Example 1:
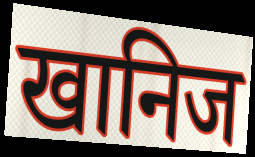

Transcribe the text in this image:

खानिज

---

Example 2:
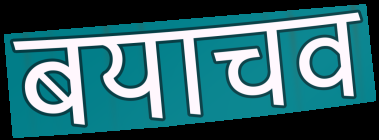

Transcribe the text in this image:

बयाचव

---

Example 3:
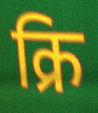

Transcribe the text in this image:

क्रि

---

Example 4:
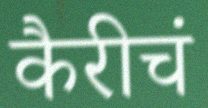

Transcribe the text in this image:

कैरीचं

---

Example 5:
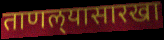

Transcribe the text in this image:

ताणल्यासारखा